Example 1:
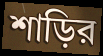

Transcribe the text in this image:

শাড়ির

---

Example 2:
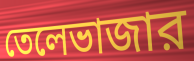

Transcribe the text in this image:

তেলেভাজার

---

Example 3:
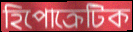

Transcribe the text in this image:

হিপোক্রেটিক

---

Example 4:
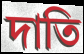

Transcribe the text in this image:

দাতি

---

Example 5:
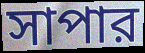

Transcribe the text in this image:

সাপার